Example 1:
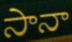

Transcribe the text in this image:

సానా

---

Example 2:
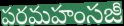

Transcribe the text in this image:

పరమహంసజీ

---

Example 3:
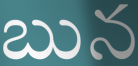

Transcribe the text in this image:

బున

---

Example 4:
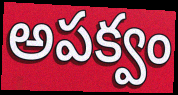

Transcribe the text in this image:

అపక్వం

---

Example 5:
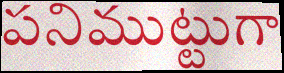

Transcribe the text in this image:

పనిముట్టుగా